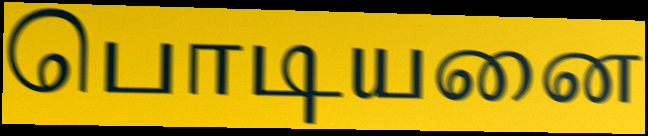
பொடியனை